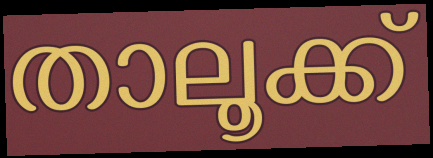
താലൂക്ക്